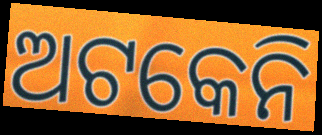
ଅଟକେନି